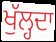
ਖੁੱਲ੍ਹਦਾ